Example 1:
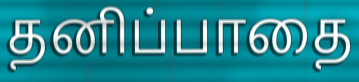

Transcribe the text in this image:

தனிப்பாதை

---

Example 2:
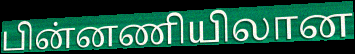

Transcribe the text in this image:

பின்னணியிலான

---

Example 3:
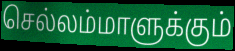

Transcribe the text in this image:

செல்லம்மாளுக்கும்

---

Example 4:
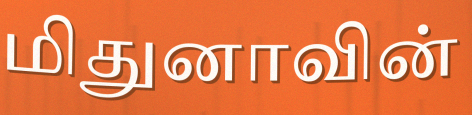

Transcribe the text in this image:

மிதுனாவின்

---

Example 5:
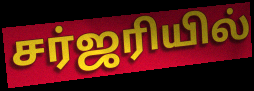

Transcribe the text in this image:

சர்ஜரியில்